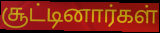
சூட்டினார்கள்